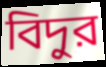
বিদুর